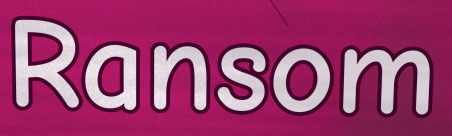
Ransom